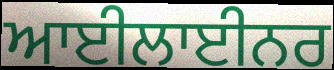
ਆਈਲਾਈਨਰ